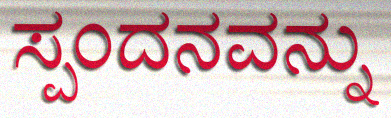
ಸ್ಪಂದನವನ್ನು